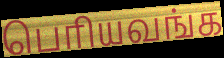
பெரியவங்க